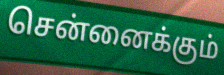
சென்னைக்கும்